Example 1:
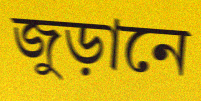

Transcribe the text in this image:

জুড়ানে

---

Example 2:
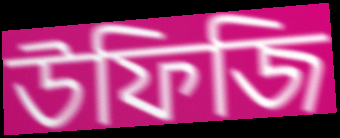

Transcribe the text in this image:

উফিজি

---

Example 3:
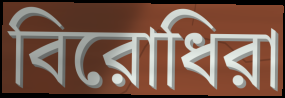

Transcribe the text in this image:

বিরোধিরা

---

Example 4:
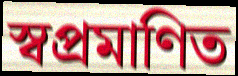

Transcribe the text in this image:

স্বপ্রমাণিত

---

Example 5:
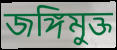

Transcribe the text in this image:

জঙ্গিমুক্ত